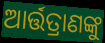
ଆର୍ତ୍ତତ୍ରାଣଙ୍କୁ